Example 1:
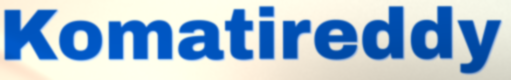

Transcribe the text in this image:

Komatireddy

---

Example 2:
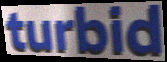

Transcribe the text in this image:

turbid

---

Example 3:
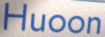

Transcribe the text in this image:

Huoon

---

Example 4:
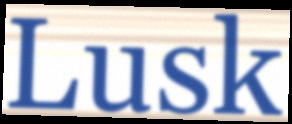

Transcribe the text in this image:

Lusk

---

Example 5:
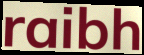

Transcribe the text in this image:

raibh